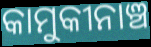
କାମୁକୀନାଞ୍ଚ